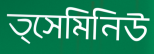
ত্সেমিনিউ